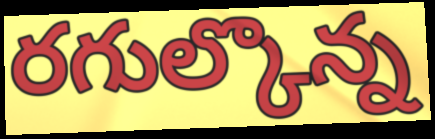
రగుల్కొన్న